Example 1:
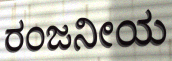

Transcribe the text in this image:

ರಂಜನೀಯ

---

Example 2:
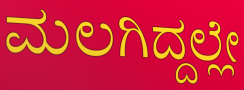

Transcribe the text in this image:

ಮಲಗಿದ್ದಲ್ಲೇ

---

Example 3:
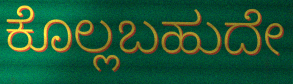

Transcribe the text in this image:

ಕೊಲ್ಲಬಹುದೇ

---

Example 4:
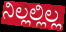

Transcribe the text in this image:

ನಿಲ್ಲಲ್ಲಿಲ್ಲ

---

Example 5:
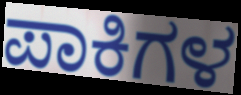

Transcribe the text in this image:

ಪಾಕಿಗಳ